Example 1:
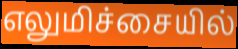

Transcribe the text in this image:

எலுமிச்சையில்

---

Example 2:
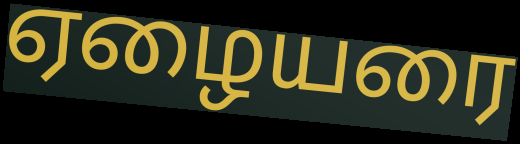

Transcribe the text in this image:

ஏழையரை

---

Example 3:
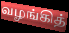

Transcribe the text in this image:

வழங்கித்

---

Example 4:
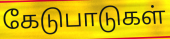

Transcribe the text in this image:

கேடுபாடுகள்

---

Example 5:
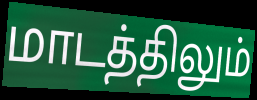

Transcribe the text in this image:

மாடத்திலும்